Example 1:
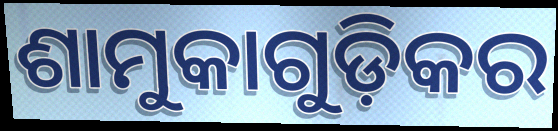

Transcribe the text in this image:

ଶାମୁକାଗୁଡ଼ିକର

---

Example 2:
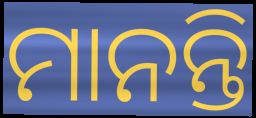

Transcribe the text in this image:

ମାନନ୍ତି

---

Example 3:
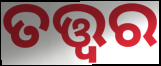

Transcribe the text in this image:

ତତ୍ତ୍ଵର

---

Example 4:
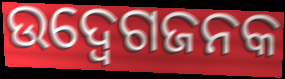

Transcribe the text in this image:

ଉଦ୍ବେଗଜନକ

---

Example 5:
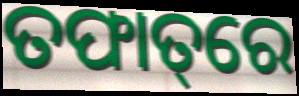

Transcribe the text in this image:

ତଫାତ୍‌ରେ